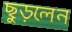
ছুড়লেন